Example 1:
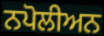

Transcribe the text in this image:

ਨਪੋਲੀਅਨ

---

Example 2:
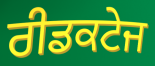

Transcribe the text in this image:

ਰੀਡਕਟੇਜ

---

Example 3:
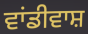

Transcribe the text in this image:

ਵਾਂਡੀਵਾਸ਼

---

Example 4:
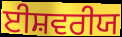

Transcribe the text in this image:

ਈਸ਼ਵਰੀਯ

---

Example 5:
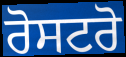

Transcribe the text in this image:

ਰੋਸਟਰੋ